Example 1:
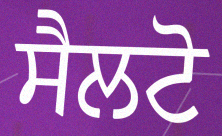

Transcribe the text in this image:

ਸੈਲਟੋ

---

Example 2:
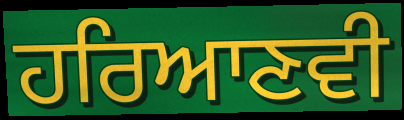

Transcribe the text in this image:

ਹਰਿਆਣਵੀ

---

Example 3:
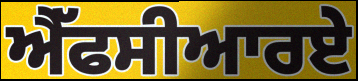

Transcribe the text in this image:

ਐੱਫਸੀਆਰਏ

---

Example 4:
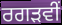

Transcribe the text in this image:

ਰਗੜਵੀਂ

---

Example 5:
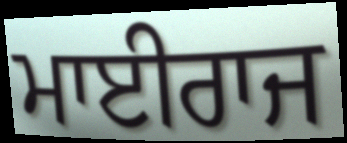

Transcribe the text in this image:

ਮਾਈਰਾਜ